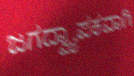
ಜಗದ್ವ್ಯಾಪಕವಾಗಿ